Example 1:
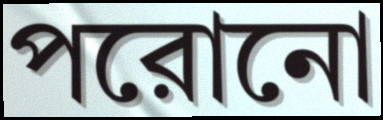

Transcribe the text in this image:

পরোনো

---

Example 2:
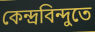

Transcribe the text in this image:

কেন্দ্রবিন্দুতে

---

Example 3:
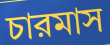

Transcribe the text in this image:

চারমাস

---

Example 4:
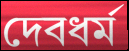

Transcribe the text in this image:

দেবধর্ম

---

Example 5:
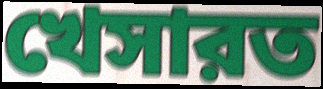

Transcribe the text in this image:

খেসারত